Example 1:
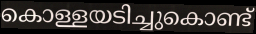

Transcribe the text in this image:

കൊള്ളയടിച്ചുകൊണ്ട്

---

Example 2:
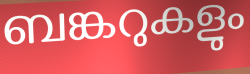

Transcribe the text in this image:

ബങ്കറുകളും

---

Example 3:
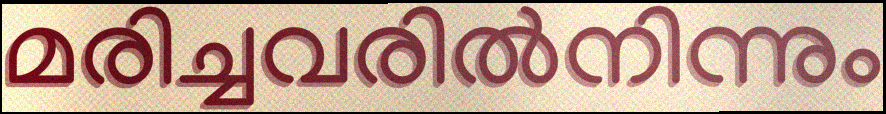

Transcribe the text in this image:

മരിച്ചവരിൽനിന്നും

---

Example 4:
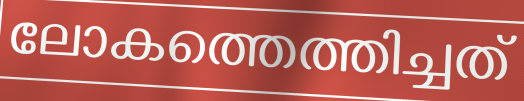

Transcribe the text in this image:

ലോകത്തെത്തിച്ചത്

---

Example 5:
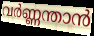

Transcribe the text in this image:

വർണ്ണന്താൻ